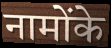
नामोंके